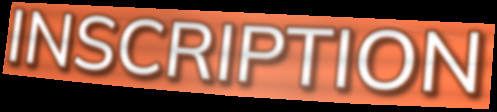
INSCRIPTION